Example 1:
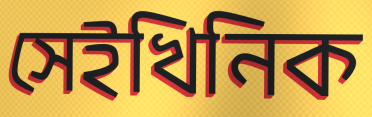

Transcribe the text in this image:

সেইখিনিক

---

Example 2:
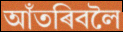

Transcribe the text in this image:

আঁতৰিবলৈ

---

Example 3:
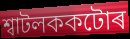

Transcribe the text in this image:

শ্বাটলককটোৰ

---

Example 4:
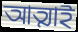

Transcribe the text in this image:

আত্মাই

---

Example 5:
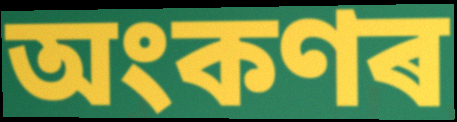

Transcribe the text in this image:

অংকণৰ